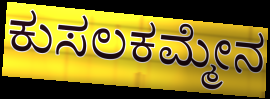
ಕುಸಲಕಮ್ಮೇನ